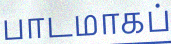
பாடமாகப்